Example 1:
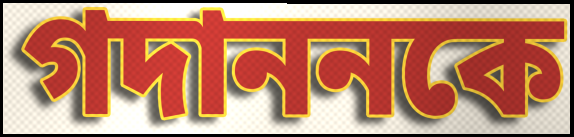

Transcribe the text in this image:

গদাননকে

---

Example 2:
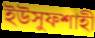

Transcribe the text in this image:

ইউসুফশাহী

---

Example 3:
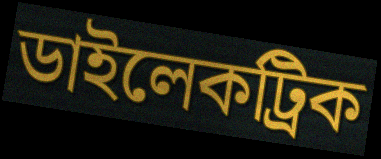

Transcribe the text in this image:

ডাইলেকট্রিক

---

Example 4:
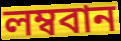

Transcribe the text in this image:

লম্ববান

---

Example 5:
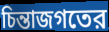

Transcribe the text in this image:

চিন্তাজগতের